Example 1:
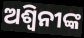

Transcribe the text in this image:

ଅଶ୍ୱିନୀଙ୍କ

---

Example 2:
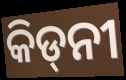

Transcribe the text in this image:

କିଡ୍‍ନୀ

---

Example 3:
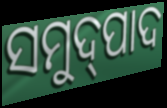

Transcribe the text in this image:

ସମୁଦ୍‌ପାଦ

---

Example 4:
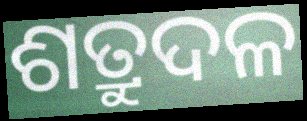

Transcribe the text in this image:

ଶତ୍ରୁଦଳ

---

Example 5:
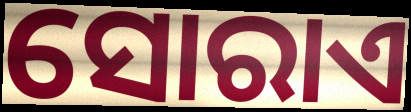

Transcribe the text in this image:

ସୋରାଏ